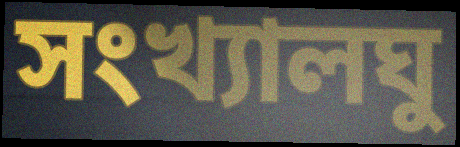
সংখ্যালঘু